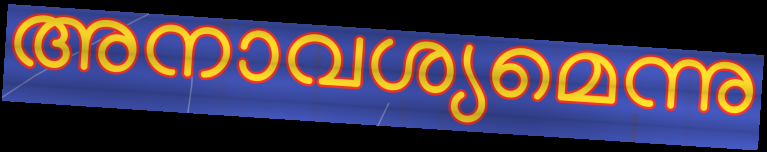
അനാവശ്യമെന്നു